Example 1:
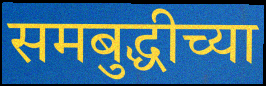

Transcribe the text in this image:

समबुद्धीच्या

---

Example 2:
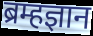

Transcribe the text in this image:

ब्रम्हज्ञान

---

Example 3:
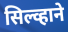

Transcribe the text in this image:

सिल्व्हाने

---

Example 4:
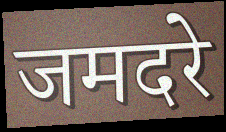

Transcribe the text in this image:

जमदरे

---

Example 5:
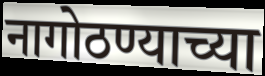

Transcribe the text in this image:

नागोठण्याच्या